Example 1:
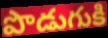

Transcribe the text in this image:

పొడుగుకి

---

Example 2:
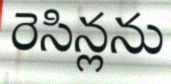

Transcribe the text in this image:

రెసిన్లను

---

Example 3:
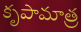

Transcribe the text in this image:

కృపామాత్ర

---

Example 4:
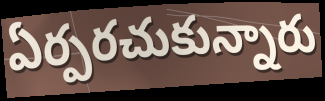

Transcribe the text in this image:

ఏర్పరచుకున్నారు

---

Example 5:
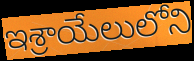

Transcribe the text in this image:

ఇశ్రాయేలులోని